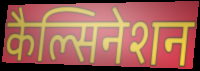
कैल्सिनेशन